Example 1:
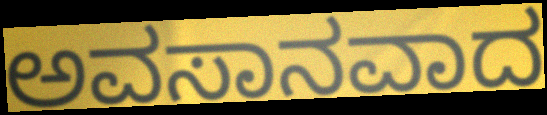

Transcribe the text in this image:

ಅವಸಾನವಾದ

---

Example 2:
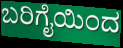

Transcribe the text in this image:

ಬರಿಗೈಯಿಂದ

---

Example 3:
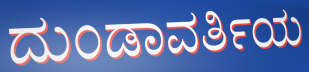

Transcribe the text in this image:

ದುಂಡಾವರ್ತಿಯ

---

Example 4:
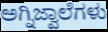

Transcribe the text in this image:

ಅಗ್ನಿಜ್ವಾಲೆಗಳು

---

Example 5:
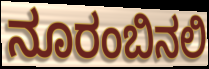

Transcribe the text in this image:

ನೂರಂಬಿನಲಿ